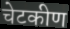
चेटकीण